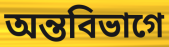
অন্তবিভাগে